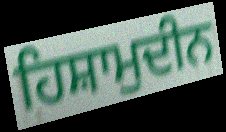
ਹਿਸ਼ਾਮੁਦੀਨ